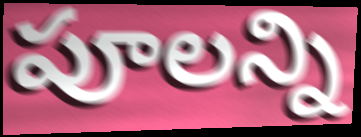
పూలన్ని